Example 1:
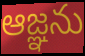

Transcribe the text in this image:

ఆజ్ఞను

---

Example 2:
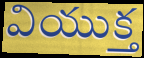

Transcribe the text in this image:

వియుక్త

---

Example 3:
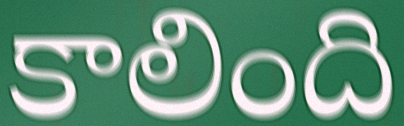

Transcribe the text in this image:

కాలింది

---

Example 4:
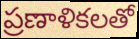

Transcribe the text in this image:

ప్రణాళికలతో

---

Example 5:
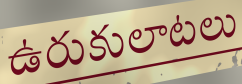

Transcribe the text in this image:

ఉరుకులాటలు